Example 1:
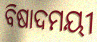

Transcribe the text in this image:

ବିଷାଦମୟୀ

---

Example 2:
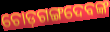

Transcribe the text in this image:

ଚୋଡ଼ଗଙ୍ଗଦେବଙ୍କ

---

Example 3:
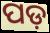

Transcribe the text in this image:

ପଡ଼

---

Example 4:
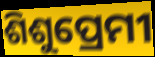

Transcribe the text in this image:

ଶିଶୁପ୍ରେମୀ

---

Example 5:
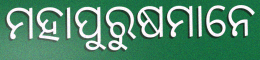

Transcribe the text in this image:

ମହାପୁରୁଷମାନେ